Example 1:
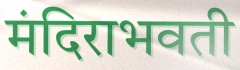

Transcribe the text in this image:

मंदिराभवती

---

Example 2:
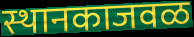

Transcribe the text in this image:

स्थानकाजवळ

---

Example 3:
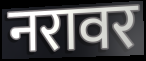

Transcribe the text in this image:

नरावर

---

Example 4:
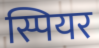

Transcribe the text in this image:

स्पियर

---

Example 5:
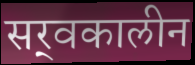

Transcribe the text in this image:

सर्वकालीन